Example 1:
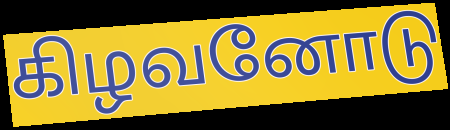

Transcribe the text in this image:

கிழவனோடு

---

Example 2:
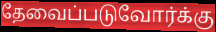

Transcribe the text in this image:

தேவைப்படுவோர்க்கு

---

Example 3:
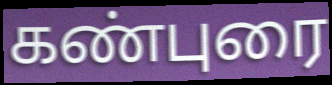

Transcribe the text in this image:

கண்புரை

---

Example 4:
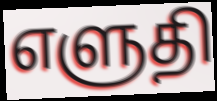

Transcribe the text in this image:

எளுதி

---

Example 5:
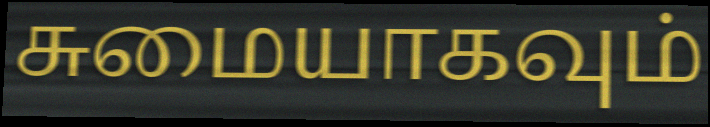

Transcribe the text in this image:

சுமையாகவும்